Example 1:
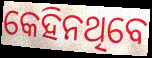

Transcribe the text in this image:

କେହିନଥିବେ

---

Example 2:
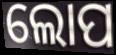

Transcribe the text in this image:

ଲୋପ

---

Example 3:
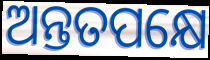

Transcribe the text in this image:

ଅନ୍ତତପକ୍ଷେ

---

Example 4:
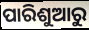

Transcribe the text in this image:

ପାରିଶୁଆରୁ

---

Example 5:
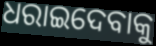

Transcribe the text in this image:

ଧରାଇଦେବାକୁ